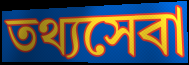
তথ্যসেবা